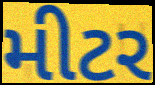
મીટર